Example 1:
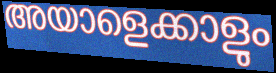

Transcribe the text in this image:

അയാളെക്കാളും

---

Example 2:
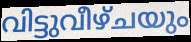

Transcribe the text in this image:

വിട്ടുവീഴ്ചയും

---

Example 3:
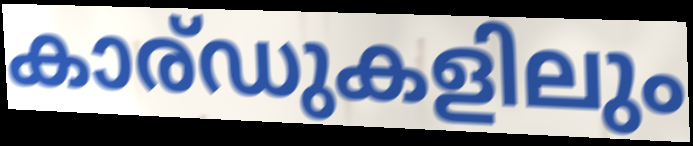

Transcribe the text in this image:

കാര്ഡുകളിലും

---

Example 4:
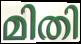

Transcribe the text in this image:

മിതി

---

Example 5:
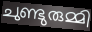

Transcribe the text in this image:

ചുണ്ടുരുമ്മി